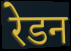
रेडन